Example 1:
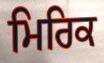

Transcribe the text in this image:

ਮਿਰਿਕ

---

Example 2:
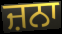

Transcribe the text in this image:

ਜ਼ਨਾ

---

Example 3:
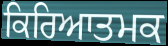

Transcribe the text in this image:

ਕਿਰਿਆਤਮਕ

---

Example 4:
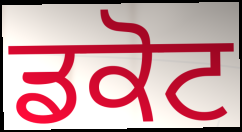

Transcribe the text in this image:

ਡਕੋਟ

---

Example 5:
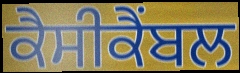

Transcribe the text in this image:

ਕੈਸੀਕੈਂਬਲ